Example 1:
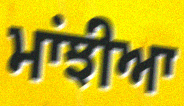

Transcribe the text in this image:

ਮਾਂਝੀਆ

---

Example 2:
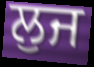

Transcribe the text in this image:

ਲੁਜ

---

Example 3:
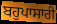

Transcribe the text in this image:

ਬਹੁਪਾਸਾਰੀ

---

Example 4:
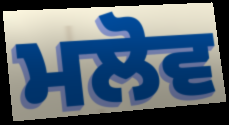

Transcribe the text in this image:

ਮਲੋਵ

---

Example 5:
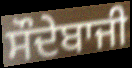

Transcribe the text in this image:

ਸੌਦੇਬਾਜੀ